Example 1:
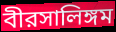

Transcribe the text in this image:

বীরসালিঙ্গম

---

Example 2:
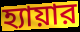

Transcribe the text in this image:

হ্যায়ার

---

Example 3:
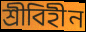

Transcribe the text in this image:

শ্রীবিহীন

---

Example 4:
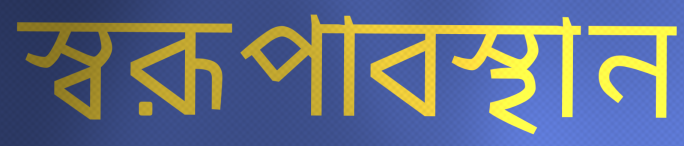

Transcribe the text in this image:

স্বরূপাবস্থান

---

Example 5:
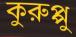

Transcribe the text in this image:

কুরুপ্পু